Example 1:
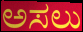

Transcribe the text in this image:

ಅಸಲು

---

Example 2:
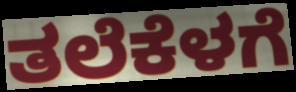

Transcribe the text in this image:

ತಲೆಕೆಳಗೆ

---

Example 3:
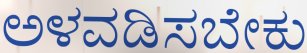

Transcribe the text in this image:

ಅಳವಡಿಸಬೇಕು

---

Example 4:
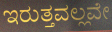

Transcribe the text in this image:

ಇರುತ್ತವಲ್ಲವೇ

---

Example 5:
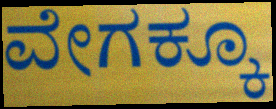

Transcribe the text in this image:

ವೇಗಕ್ಕೂ